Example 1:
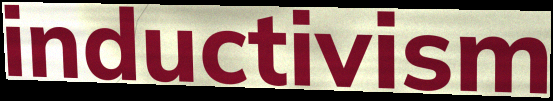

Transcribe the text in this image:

inductivism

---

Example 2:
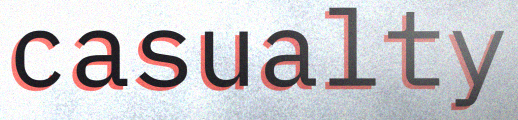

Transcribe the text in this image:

casualty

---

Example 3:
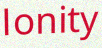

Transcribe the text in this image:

Ionity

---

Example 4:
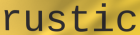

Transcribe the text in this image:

rustic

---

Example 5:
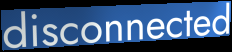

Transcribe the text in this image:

disconnected